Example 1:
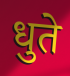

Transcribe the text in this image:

धुते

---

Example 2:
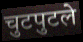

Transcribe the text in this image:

चुटपुटले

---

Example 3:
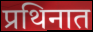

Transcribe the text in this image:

प्रथिनात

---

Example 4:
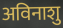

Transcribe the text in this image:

अविनाशु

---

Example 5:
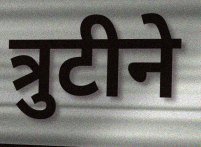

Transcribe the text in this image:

त्रुटीने